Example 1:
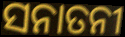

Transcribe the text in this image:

ସନାତନୀ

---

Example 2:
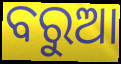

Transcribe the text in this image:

ବରୁଆ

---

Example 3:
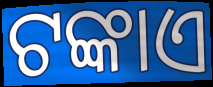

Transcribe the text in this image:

ଟଙ୍କାଏ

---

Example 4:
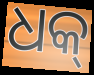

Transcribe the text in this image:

ଧକ୍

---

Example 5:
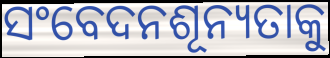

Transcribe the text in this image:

ସଂବେଦନଶୂନ୍ୟତାକୁ